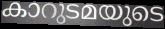
കാറുടമയുടെ